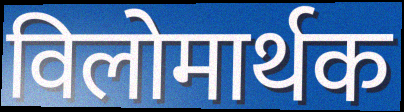
विलोमार्थक